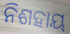
ନିଶହାୟ